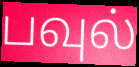
பவுல்